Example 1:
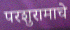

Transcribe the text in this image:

परशुरामाचे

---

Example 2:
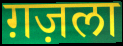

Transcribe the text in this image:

ग़ज़ला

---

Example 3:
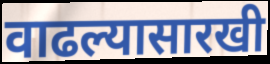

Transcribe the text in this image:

वाढल्यासारखी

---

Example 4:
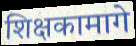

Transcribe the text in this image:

शिक्षकामागे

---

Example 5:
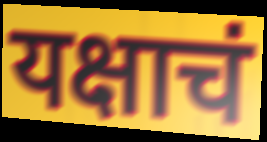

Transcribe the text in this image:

यक्षाचं